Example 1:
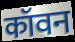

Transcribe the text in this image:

कॉवन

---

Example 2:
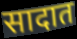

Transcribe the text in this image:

सादात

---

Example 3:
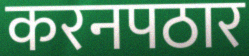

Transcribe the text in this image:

करनपठार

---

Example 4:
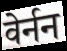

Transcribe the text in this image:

वेर्नन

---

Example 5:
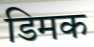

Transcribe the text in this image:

डिमक